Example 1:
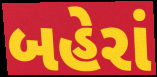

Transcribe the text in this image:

બહેરાં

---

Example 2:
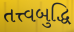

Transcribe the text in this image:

તત્ત્વબુદ્ધિ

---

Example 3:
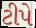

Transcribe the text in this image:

ટીપે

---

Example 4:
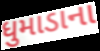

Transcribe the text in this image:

ધુમાડાના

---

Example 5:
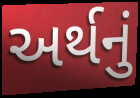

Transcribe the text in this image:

અર્થનું